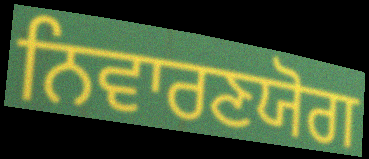
ਨਿਵਾਰਣਯੋਗ